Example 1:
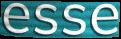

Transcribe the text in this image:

esse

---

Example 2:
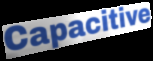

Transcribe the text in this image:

Capacitive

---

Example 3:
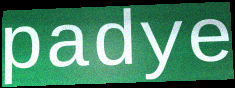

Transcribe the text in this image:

padye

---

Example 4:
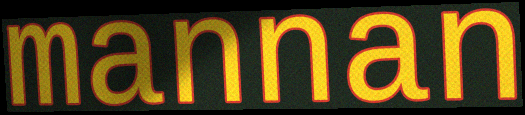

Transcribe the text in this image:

mannan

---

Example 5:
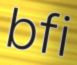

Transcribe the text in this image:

bfi